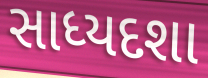
સાધ્યદશા